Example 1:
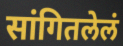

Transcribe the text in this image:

सांगितलेलं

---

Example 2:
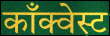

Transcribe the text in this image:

काँक्वेस्ट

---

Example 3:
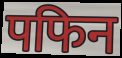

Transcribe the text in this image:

पफिन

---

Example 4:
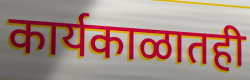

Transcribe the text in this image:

कार्यकाळातही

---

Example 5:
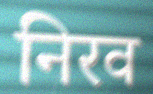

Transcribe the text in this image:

निरव